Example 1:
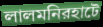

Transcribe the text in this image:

লালমনিরহাটে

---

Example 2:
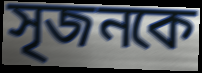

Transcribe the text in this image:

সৃজনকে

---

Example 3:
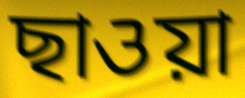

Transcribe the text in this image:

ছাওয়া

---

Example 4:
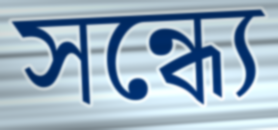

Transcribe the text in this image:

সন্ধ্যে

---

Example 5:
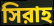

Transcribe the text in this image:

সিরাহ